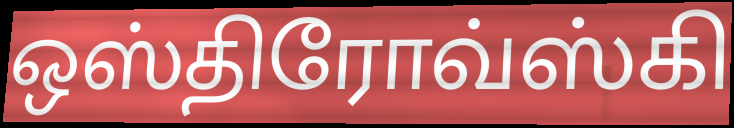
ஒஸ்திரோவ்ஸ்கி